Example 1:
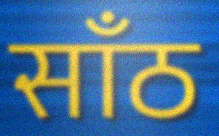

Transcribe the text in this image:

साँठ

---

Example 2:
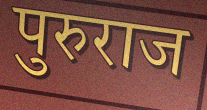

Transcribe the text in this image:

पुरुराज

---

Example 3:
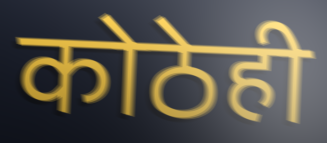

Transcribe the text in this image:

कोठेही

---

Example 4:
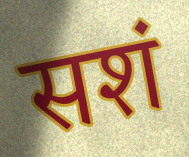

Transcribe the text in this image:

सशं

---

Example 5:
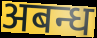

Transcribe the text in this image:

अबन्ध